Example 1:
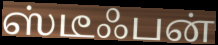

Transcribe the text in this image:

ஸ்டீஃபன்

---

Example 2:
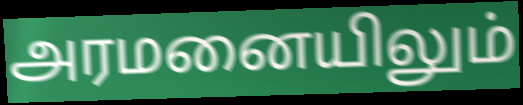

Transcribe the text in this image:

அரமனையிலும்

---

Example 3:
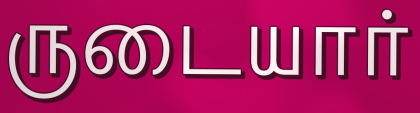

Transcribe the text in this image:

ருடையார்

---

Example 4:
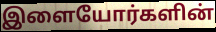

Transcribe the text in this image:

இளையோர்களின்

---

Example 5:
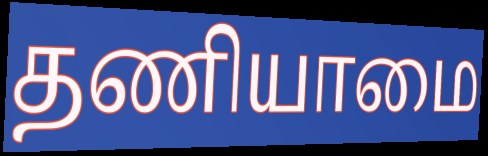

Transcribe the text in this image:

தணியாமை